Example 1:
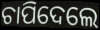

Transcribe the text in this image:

ଚାପିଦେଲେ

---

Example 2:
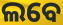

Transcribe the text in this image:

ଲବେ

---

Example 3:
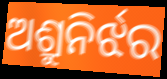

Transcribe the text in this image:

ଅଶ୍ରୁନିର୍ଝର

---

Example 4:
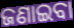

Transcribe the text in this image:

ଜଣାଇବା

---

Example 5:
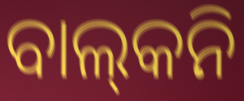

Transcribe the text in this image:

ବାଲ୍‍କନି